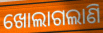
ଖୋଲାଗଲାଣି